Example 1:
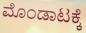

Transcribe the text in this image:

ಮೊಂಡಾಟಕ್ಕೆ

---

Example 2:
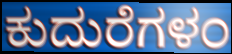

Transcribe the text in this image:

ಕುದುರೆಗಳಂ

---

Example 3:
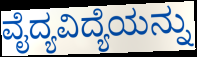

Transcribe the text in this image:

ವೈದ್ಯವಿದ್ಯೆಯನ್ನು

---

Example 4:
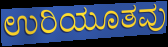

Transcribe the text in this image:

ಉರಿಯೂತವು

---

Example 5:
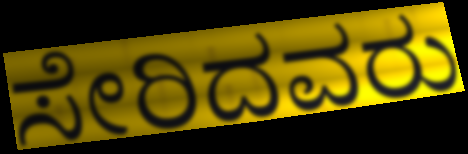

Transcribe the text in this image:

ಸೇರಿದವರು